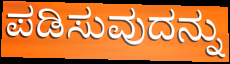
ಪಡಿಸುವುದನ್ನು